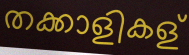
തക്കാളികള്